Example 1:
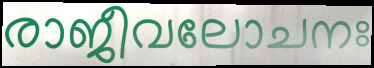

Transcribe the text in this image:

രാജീവലോചനഃ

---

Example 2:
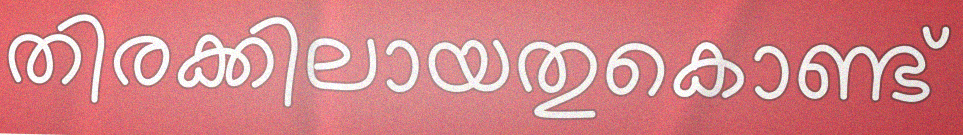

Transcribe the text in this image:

തിരക്കിലായതുകൊണ്ട്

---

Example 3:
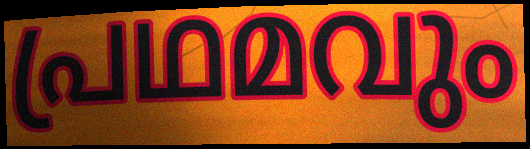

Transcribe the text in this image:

പ്രഥമവും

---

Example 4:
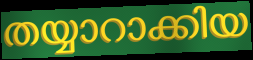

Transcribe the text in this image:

തയ്യാറാക്കിയ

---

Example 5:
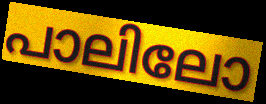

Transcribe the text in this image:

പാലിലോ